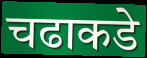
चढाकडे